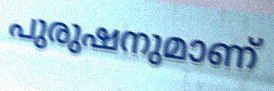
പുരുഷനുമാണ്